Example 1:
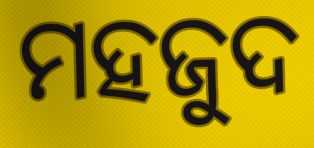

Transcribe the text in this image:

ମହଜୁଦ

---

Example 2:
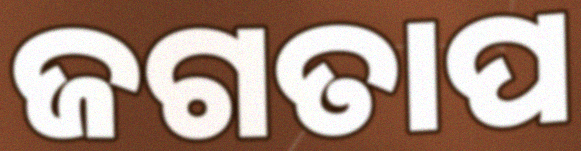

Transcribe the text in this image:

ଜଗତାପ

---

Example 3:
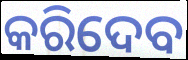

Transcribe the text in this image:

କରିଦେବ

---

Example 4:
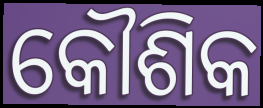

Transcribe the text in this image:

କୌଶିକ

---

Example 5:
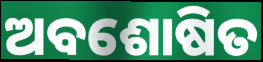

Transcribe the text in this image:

ଅବଶୋଷିତ